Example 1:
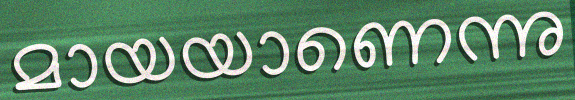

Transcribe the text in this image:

മായയാണെന്നു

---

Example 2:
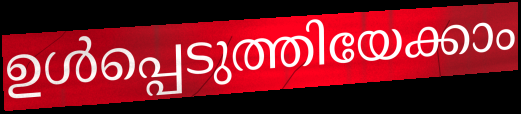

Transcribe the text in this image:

ഉൾപ്പെടുത്തിയേക്കാം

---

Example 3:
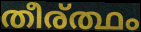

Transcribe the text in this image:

തീര്ത്ഥം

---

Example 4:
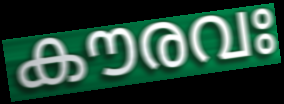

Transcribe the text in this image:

കൗരവഃ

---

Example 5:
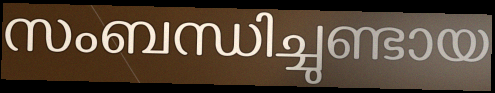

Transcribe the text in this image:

സംബന്ധിച്ചുണ്ടായ